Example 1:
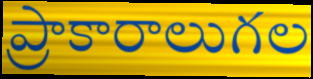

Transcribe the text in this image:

ప్రాకారాలుగల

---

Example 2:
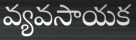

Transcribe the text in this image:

వ్యవసాయక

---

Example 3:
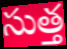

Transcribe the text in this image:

సుత్త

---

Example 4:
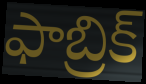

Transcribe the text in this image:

ఫాబ్రిక్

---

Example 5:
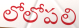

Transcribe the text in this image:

లోలోపలి